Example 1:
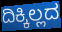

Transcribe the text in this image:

ದಿಕ್ಕಿಲ್ಲದ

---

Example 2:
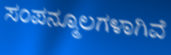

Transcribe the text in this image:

ಸಂಪನ್ಮೂಲಗಳಾಗಿವೆ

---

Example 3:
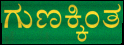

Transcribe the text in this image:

ಗುಣಕ್ಕಿಂತ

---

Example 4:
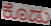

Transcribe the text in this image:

ಕೊಡು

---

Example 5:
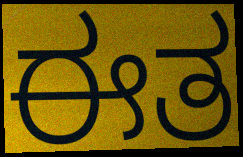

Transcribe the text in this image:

ಈತ